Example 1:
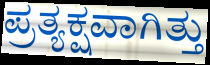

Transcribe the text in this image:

ಪ್ರತ್ಯಕ್ಷವಾಗಿತ್ತು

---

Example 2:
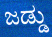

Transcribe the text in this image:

ಜಡ್ಡು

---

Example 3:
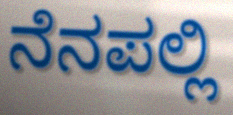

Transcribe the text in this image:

ನೆನಪಲ್ಲಿ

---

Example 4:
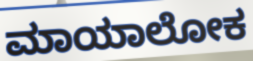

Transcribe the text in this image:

ಮಾಯಾಲೋಕ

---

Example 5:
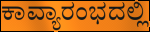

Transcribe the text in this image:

ಕಾವ್ಯಾರಂಭದಲ್ಲಿ